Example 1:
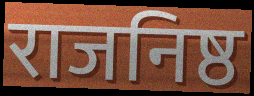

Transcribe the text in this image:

राजनिष्ठ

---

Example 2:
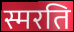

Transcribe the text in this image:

स्मरति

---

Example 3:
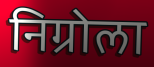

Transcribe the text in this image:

निग्रोला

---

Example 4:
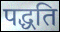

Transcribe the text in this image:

पद्धति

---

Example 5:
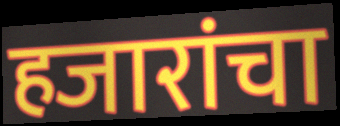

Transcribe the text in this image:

हजारांचा